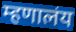
म्हणालंय